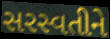
સરસ્વતીને